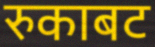
रुकाबट